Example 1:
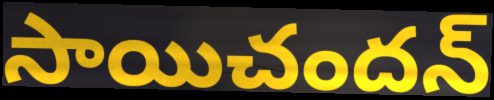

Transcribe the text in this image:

సాయిచందన్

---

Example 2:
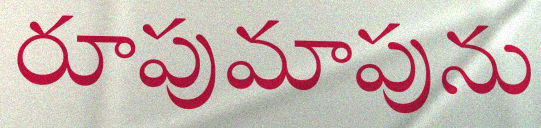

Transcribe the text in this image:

రూపుమాపును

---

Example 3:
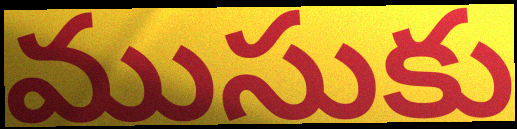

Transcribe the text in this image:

ముసుకు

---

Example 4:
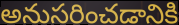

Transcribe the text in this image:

అనుసరించడానికి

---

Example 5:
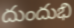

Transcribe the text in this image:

దుందుభి